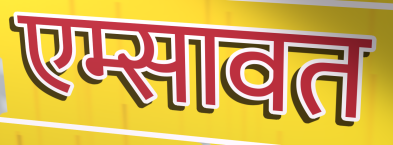
एम्सावत